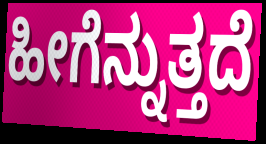
ಹೀಗೆನ್ನುತ್ತದೆ